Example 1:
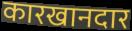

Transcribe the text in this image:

कारखानदार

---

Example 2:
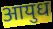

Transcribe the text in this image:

आयुध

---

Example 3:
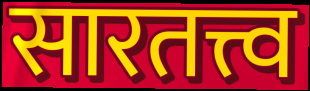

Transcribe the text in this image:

सारतत्त्व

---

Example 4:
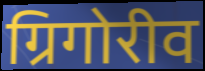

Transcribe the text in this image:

ग्रिगोरीव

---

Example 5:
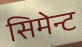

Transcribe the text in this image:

सिमेन्ट